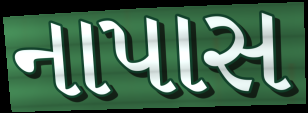
નાપાસ